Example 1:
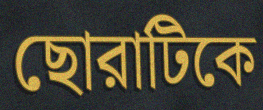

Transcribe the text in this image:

ছোরাটিকে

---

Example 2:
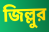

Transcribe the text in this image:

জিল্লুর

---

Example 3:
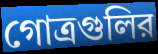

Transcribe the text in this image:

গোত্রগুলির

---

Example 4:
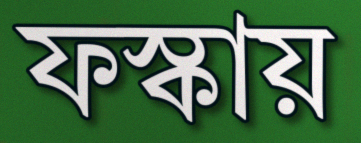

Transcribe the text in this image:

ফস্কায়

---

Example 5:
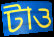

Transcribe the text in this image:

টাও